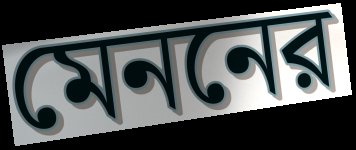
মেননের